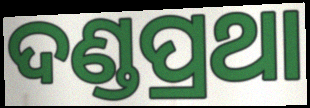
ଦଣ୍ଡପ୍ରଥା